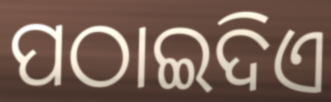
ପଠାଇଦିଏ